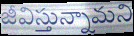
జీవిస్తున్నామని